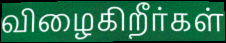
விழைகிறீர்கள்